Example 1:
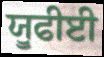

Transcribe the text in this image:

ਯੂਫੀਈ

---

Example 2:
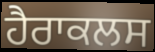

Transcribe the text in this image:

ਹੈਰਾਕਲਸ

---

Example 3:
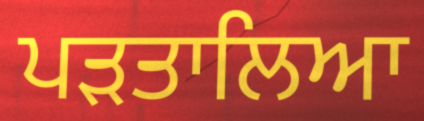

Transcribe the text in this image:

ਪੜਤਾਲਿਆ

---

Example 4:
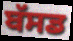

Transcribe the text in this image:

ਬੱਸਡ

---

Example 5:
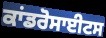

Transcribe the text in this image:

ਕਾਂਡਰੋਸਾਈਟਸ